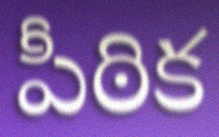
పీఠిక